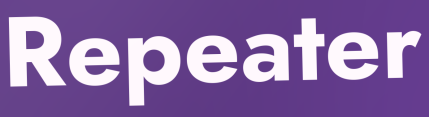
Repeater